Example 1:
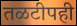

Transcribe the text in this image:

तळटीपही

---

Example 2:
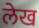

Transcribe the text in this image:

लेख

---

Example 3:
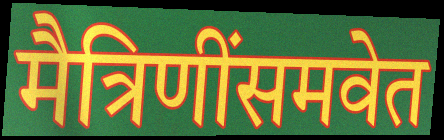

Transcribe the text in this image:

मैत्रिणींसमवेत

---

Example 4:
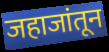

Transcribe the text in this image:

जहाजांतून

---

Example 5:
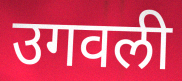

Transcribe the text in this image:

उगवली